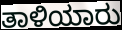
ತಾಳಿಯಾರು